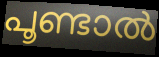
പൂണ്ടാൽ